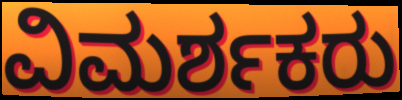
ವಿಮರ್ಶಕರು